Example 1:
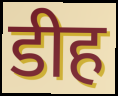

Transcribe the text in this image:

डीह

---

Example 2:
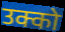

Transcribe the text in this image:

उक्को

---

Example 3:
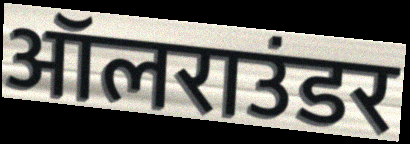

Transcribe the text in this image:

ऑलराउंडर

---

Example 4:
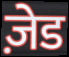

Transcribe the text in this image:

ज़ेड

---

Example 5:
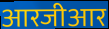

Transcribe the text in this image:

आरजीआर